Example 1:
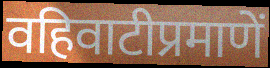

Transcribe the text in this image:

वहिवाटीप्रमाणें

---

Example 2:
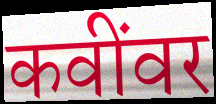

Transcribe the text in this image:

कवींवर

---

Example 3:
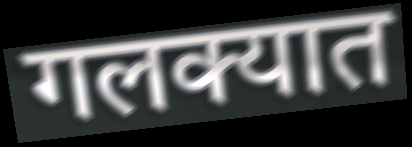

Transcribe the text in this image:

गलक्यात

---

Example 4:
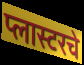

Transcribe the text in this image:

प्लास्टरचे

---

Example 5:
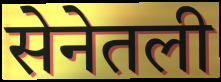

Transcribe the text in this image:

सेनेतली